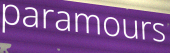
paramours